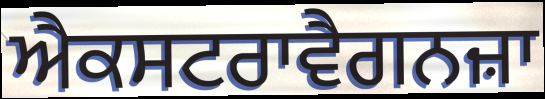
ਐਕਸਟਰਾਵੈਗਨਜ਼ਾ